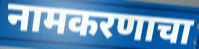
नामकरणाचा